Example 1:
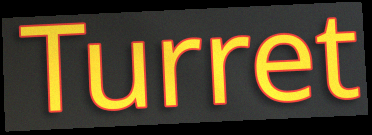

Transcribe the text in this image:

Turret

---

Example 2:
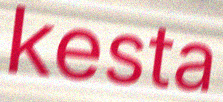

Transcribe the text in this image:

kesta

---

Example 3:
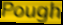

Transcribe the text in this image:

Pough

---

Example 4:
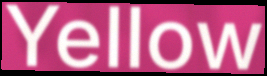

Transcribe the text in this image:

Yellow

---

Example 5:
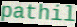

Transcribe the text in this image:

pathil